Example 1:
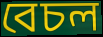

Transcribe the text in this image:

বেচল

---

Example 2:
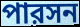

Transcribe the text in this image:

পারসন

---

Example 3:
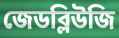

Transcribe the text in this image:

জেডব্লিউজি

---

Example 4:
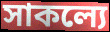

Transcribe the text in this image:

সাকল্যে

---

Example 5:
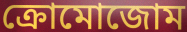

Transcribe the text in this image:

ক্রোমোজোম